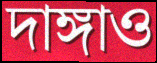
দাঙ্গাও